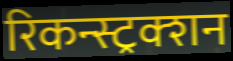
रिकन्स्ट्रक्शन